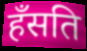
हँसति